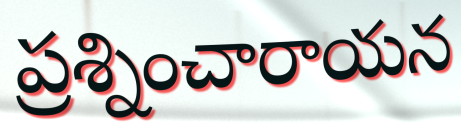
ప్రశ్నించారాయన